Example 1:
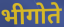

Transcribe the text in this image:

भीगोते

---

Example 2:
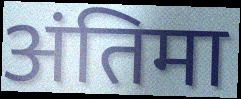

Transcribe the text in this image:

अंतिमा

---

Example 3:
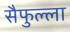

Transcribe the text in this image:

सैफुल्ला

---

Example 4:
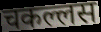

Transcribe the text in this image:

चकल्लस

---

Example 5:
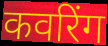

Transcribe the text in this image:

कवरिंग